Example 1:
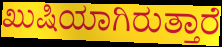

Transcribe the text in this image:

ಖುಷಿಯಾಗಿರುತ್ತಾರೆ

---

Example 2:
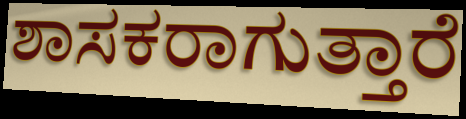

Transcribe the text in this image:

ಶಾಸಕರಾಗುತ್ತಾರೆ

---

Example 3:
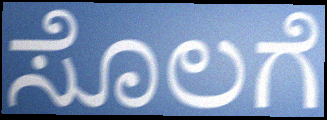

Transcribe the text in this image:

ಸೊಲಗೆ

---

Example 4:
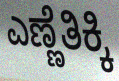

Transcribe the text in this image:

ಎಣ್ಣೆತಿಕ್ಕಿ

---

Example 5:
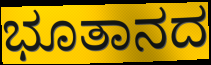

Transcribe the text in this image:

ಭೂತಾನದ